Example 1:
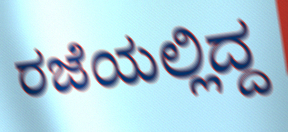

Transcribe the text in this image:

ರಜೆಯಲ್ಲಿದ್ದ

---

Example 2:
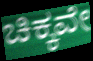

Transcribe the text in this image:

ಚಿಕ್ಕವೇ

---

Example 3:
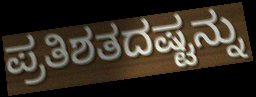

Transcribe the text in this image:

ಪ್ರತಿಶತದಷ್ಟನ್ನು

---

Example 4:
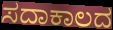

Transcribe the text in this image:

ಸದಾಕಾಲದ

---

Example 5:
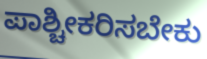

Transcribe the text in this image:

ಪಾಶ್ಚೀಕರಿಸಬೇಕು